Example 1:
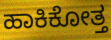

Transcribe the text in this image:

ಹಾಕಿಕೋತ್ತ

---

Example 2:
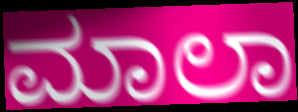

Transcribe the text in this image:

ಮಾಲಾ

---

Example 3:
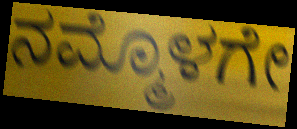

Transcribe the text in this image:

ನಮ್ಮೊಳಗೇ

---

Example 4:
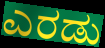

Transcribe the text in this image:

ಎರಡು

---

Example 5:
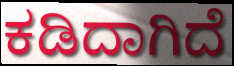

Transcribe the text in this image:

ಕಡಿದಾಗಿದೆ